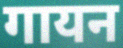
गायन